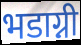
भडाग्नी